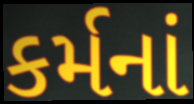
કર્મનાં